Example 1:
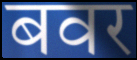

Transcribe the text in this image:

बवर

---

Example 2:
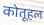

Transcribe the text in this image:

कोतूहल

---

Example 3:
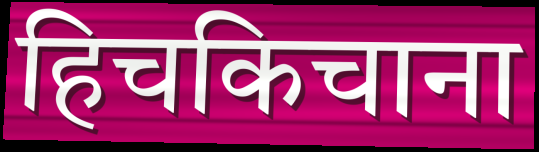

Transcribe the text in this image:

हिचकिचाना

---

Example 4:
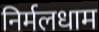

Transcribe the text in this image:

निर्मलधाम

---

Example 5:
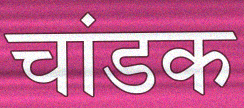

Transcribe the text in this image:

चांडक